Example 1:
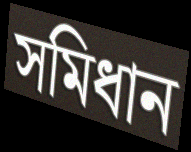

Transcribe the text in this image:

সমিধান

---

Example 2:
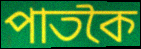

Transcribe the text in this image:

পাতকৈ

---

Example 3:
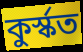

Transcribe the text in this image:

কুৰ্স্কত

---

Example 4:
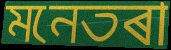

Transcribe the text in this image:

মনেতৰা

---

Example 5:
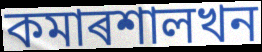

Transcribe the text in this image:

কমাৰশালখন